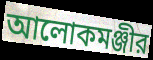
আলোকমঞ্জীর